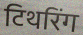
टिथरिंग